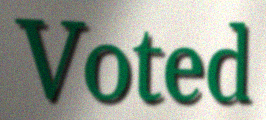
Voted